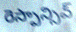
రెస్పాన్సివ్